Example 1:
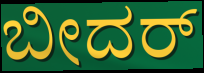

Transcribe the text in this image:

ಬೀದರ್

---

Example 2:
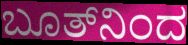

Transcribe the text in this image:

ಬೂತ್‌ನಿಂದ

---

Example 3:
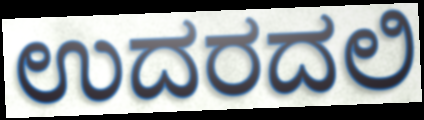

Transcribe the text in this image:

ಉದರದಲಿ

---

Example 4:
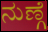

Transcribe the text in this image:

ನುಣ್ಗೆ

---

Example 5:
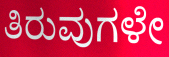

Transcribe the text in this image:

ತಿರುವುಗಳೇ